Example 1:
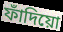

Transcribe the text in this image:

ফাঁদিয়ো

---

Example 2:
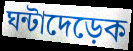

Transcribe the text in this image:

ঘন্টাদেড়েক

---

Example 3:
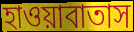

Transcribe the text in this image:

হাওয়াবাতাস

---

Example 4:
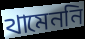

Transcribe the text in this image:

থামেননি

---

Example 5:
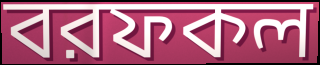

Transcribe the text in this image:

বরফকল